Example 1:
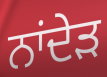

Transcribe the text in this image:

ਨਾਂਦੇੜ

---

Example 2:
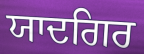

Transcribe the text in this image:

ਯਾਦਗਿਰ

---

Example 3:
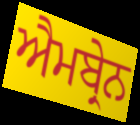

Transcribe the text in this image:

ਐਮਬ੍ਰੇਨ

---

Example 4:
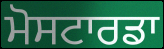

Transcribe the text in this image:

ਮੋਸਟਾਰਡਾ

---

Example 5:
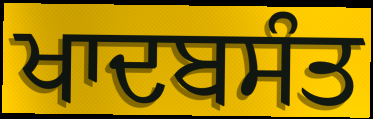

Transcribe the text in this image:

ਖਾਦਬਸੰਤ